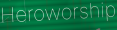
Heroworship